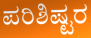
ಪರಿಶಿಷ್ಟರ